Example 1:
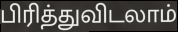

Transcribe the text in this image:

பிரித்துவிடலாம்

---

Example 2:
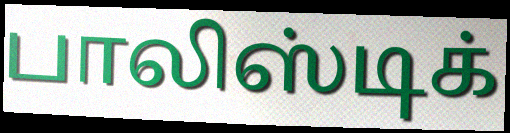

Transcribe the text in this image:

பாலிஸ்டிக்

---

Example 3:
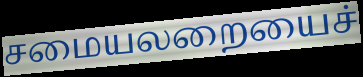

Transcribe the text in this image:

சமையலறையைச்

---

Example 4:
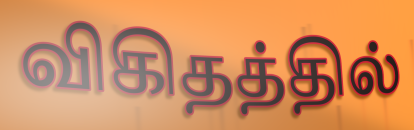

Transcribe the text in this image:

விகிதத்தில்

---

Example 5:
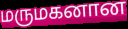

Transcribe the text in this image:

மருமகனான